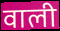
वाली